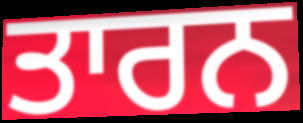
ਤਾਰਨ